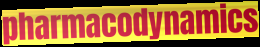
pharmacodynamics